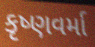
કૃષ્ણવર્મા